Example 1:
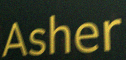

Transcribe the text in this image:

Asher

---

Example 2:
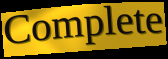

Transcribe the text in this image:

Complete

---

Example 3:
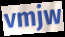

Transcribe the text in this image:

vmjw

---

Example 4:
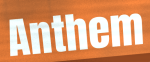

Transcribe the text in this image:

Anthem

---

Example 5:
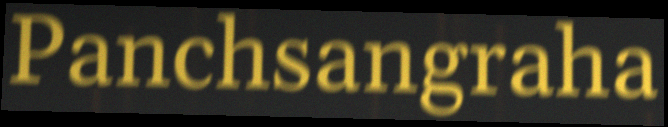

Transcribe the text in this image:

Panchsangraha